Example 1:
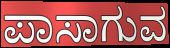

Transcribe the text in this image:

ಪಾಸಾಗುವ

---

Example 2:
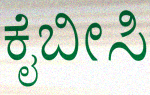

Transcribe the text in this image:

ಕೈಬೀಸಿ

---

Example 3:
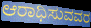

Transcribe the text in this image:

ಆರಾಧಿಸುವವರ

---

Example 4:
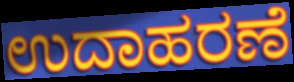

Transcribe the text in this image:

ಉದಾಹರಣೆ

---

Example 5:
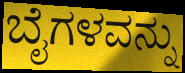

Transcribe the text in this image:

ಬೈಗಳವನ್ನು